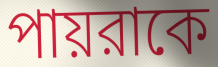
পায়রাকে